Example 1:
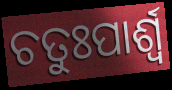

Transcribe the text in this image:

ଚତୁଃପାର୍ଶ୍ବ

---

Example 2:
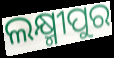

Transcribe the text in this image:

ଲକ୍ଷ୍ମୀପୁର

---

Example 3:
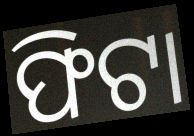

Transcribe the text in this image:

ଫିଟା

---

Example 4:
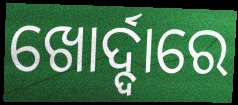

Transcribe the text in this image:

ଖୋର୍ଦ୍ଦାରେ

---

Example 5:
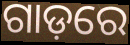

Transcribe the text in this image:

ଗାଡ଼ରେ